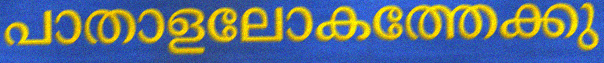
പാതാളലോകത്തേക്കു